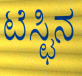
ಟೆಸ್ಟಿನ